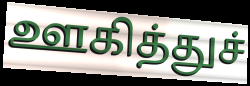
ஊகித்துச்